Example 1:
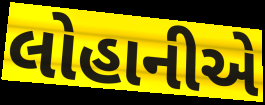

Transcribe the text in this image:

લોહાનીએ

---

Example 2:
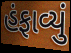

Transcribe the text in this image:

હંફાવ્યું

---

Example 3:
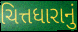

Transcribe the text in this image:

ચિત્તધારાનું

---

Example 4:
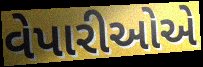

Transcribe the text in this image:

વેપારીઓએ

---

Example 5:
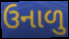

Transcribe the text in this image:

ઉનાળુ